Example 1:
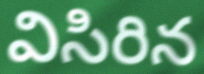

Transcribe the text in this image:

విసిరిన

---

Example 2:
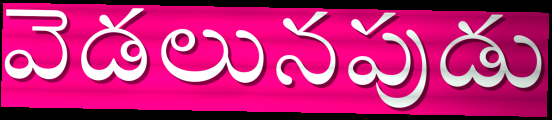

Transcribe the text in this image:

వెడలునపుడు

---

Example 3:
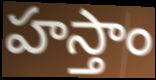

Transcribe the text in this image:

హస్తాం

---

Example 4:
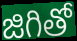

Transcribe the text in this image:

జిగితో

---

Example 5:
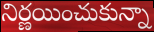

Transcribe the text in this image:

నిర్ణయించుకున్నా